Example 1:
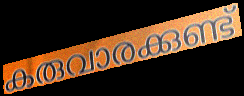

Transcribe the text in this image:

കരുവാരക്കുണ്ട്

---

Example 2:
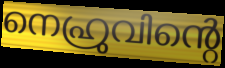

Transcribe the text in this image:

നെഹ്രുവിന്റെ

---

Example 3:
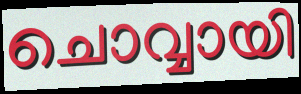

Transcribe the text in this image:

ചൊവ്വായി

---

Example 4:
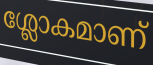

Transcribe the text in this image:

ശ്ലോകമാണ്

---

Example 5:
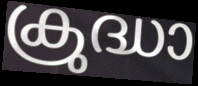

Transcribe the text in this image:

ക്രുദ്ധാ